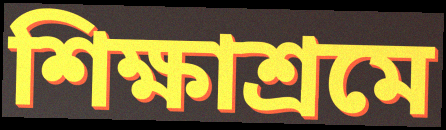
শিক্ষাশ্রমে